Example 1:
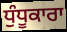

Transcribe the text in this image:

ਧੁੰਧੂਕਾਰਾ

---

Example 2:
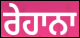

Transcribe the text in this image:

ਰੇਹਾਨਾ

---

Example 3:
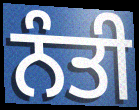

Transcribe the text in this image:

ਨੰਤੀ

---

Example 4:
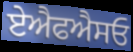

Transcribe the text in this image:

ਏਐਫਐਸਓ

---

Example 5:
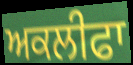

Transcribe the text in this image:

ਅਕਲੀਫਾ